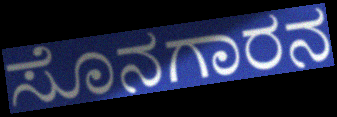
ಸೊನಗಾರನ